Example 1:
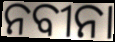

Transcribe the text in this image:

ନବୀନା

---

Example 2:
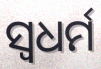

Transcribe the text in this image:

ସ୍ଵଧର୍ମ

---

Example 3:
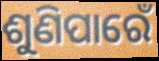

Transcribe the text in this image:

ଶୁଣିପାରେଁ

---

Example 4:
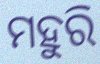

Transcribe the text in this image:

ମହୁରି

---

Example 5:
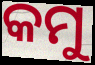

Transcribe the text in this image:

କମୁ